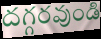
దగ్గరవుండి